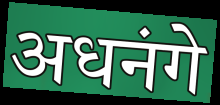
अधनंगे